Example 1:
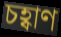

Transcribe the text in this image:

চহ্বাণ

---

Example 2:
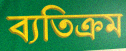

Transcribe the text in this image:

ব্যতিক্রম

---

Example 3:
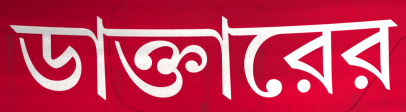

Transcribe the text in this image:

ডাক্তারের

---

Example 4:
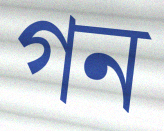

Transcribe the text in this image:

গন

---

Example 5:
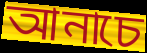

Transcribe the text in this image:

আনাচে